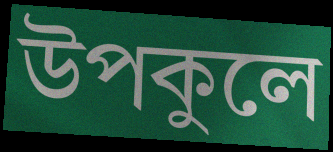
উপকুলে